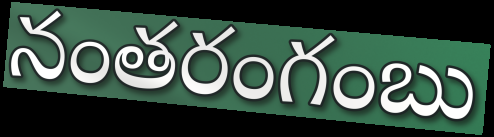
నంతరంగంబు